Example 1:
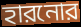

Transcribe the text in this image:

হারনোর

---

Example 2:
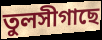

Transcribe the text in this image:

তুলসীগাছে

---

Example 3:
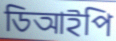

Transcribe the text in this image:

ডিআইপি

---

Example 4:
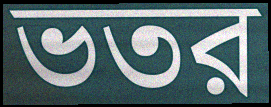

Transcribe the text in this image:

ভতর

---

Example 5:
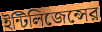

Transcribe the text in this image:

ইন্টিলিজেন্সের